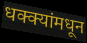
धक्क्यांमधून